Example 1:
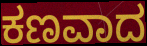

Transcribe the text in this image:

ಕಣವಾದ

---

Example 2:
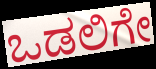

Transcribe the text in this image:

ಒಡಲಿಗೇ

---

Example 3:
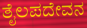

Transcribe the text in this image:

ತೈಲಪದೇವನ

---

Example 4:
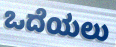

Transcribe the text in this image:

ಒದೆಯಲು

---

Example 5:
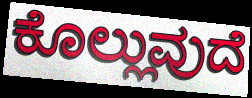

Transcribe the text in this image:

ಕೊಲ್ಲುವುದೆ